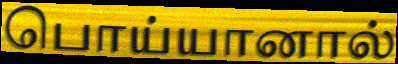
பொய்யானால்